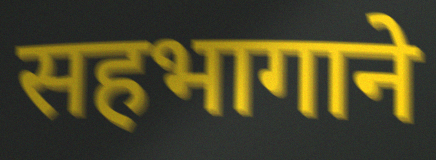
सहभागाने